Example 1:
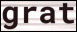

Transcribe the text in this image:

grat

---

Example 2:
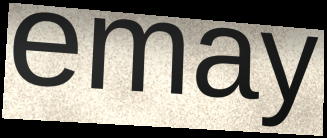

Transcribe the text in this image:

emay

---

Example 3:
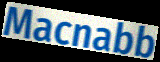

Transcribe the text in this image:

Macnabb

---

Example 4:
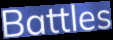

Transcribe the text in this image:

Battles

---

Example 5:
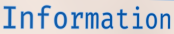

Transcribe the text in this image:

Information